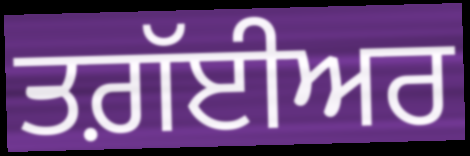
ਤਗ਼ੱਈਅਰ